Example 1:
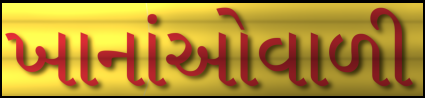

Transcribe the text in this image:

ખાનાંઓવાળી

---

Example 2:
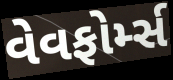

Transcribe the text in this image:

વેવફોર્મ્સ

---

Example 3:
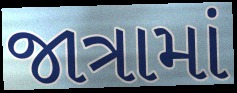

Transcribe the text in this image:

જાત્રામાં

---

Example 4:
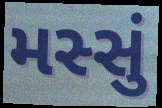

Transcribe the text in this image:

મસ્સું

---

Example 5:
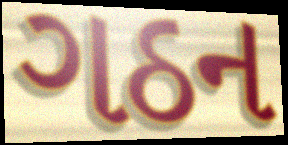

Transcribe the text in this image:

ગઠન